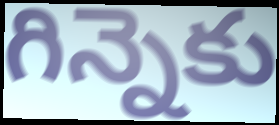
గిన్నెకు